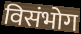
विसंभोग